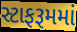
સ્ટાફરૂમમાં